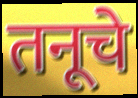
तनूचे